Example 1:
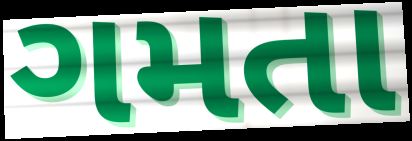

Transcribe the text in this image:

ગમતા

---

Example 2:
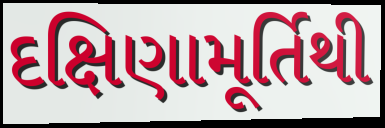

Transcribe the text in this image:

દક્ષિણામૂર્તિથી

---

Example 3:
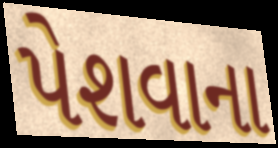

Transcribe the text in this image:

પેશવાના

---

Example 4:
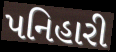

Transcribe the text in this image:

પનિહારી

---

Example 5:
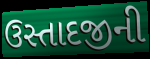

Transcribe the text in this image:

ઉસ્તાદજીની